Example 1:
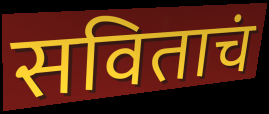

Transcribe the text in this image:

सविताचं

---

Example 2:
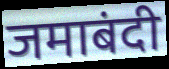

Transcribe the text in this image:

जमाबंदी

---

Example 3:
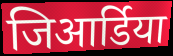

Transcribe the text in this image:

जिआर्डिया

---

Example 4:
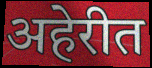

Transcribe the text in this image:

अहेरीत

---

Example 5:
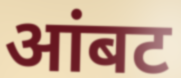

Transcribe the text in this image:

आंबट